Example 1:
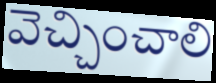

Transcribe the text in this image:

వెచ్చించాలి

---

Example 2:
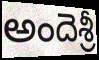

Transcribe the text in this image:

అందెశ్రీ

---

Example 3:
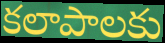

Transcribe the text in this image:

కలాపాలకు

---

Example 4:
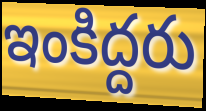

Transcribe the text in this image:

ఇంకిద్దరు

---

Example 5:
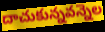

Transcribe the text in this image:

దాచుకున్నవన్నెల